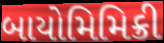
બાયોમિમિક્રી